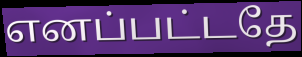
எனப்பட்டதே